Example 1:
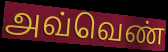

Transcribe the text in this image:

அவ்வெண்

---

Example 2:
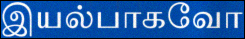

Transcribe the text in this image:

இயல்பாகவோ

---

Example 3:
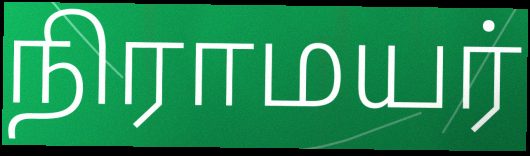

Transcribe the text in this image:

நிராமயர்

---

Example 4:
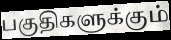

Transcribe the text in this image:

பகுதிகளுக்கும்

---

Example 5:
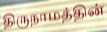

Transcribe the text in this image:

திருநாமத்தின்